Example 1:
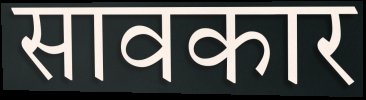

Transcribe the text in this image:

सावकार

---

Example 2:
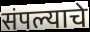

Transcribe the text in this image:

संपल्याचे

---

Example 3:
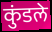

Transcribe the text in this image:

कुंडले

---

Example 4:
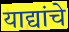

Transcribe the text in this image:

याद्यांचे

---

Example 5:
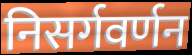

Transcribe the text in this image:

निसर्गवर्णन